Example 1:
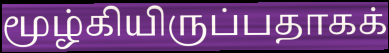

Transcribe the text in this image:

மூழ்கியிருப்பதாகக்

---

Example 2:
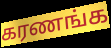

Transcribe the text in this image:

கரணங்க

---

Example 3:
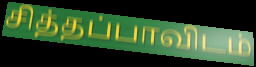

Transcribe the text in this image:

சித்தப்பாவிடம்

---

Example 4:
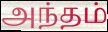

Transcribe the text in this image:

அந்தம்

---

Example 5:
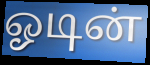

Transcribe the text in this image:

ஓடின்